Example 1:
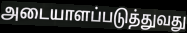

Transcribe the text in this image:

அடையாளப்படுத்துவது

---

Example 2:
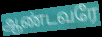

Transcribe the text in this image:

ஆண்டவரே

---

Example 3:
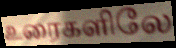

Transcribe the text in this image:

உரைகளிலே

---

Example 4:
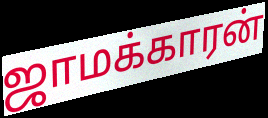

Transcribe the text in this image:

ஜாமக்காரன்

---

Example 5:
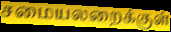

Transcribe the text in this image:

சமையலறைக்குள்